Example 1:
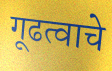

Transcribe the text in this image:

गूढत्वाचे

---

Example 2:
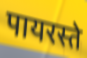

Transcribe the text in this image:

पायरस्ते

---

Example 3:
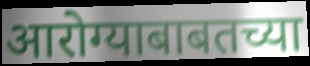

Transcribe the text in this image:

आरोग्याबाबतच्या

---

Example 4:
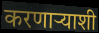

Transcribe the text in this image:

करणाऱ्याशी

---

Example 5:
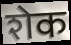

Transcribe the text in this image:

शेक